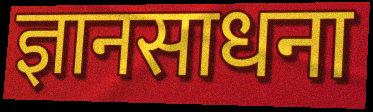
ज्ञानसाधना